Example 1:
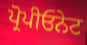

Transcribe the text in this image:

ਪ੍ਰੋਪੀਓਨੇਟ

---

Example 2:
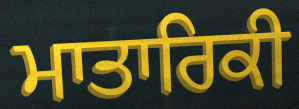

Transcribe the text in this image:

ਮਾਤਾਰਿਕੀ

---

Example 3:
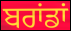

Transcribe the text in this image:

ਬਰਾਂਡਾਂ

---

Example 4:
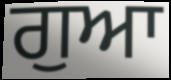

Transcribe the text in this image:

ਗੁਆ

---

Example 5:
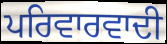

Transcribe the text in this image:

ਪਰਿਵਾਰਵਾਦੀ